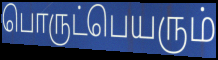
பொருட்பெயரும்